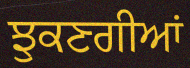
ਝੁਕਣਗੀਆਂ